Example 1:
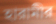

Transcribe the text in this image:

হারামীর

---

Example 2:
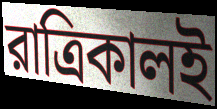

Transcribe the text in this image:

রাত্রিকালই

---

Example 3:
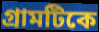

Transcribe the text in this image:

গ্রামটিকে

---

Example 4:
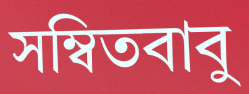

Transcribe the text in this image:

সম্বিতবাবু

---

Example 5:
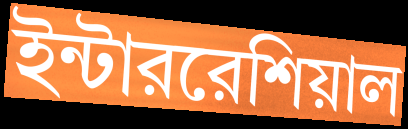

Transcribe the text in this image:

ইন্টাররেশিয়াল